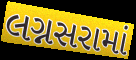
લગ્નસરામાં